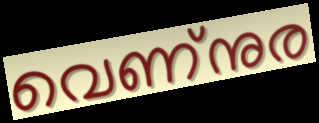
വെണ്നുര